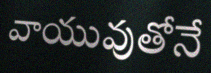
వాయువుతోనే